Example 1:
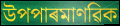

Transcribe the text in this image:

উপপাৰমাণৱিক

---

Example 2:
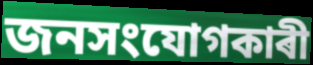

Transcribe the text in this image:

জনসংযোগকাৰী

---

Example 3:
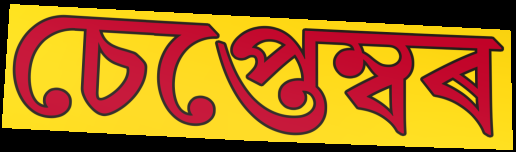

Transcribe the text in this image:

চেপ্তেম্বৰ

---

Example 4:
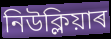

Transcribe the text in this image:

নিউক্লিয়াৰ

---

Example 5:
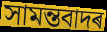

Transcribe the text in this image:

সামন্তবাদৰ